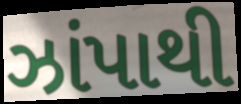
ઝાંપાથી